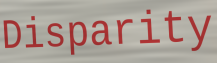
Disparity